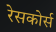
रेसकोर्स